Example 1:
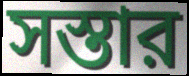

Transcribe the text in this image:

সস্তার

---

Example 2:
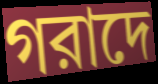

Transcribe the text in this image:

গরাদে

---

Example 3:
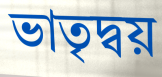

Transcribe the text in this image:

ভাতৃদ্বয়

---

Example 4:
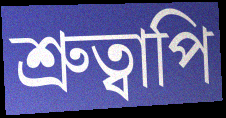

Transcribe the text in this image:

শ্রুত্বাপি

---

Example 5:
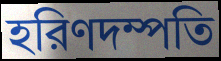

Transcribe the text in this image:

হরিণদম্পতি